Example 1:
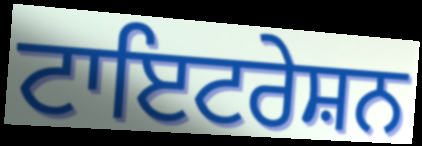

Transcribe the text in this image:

ਟਾਇਟਰੇਸ਼ਨ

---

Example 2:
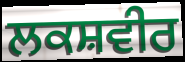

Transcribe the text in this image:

ਲਕਸ਼ਵੀਰ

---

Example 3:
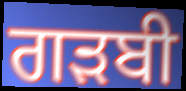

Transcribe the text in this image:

ਗੜਬੀ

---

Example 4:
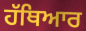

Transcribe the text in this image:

ਹੱਥਿਆਰ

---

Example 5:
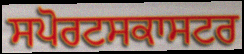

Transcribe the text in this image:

ਸਪੋਰਟਸਕਾਸਟਰ